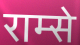
राम्से